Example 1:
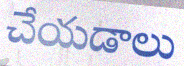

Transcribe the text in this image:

చేయడాలు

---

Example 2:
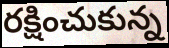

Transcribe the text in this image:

రక్షించుకున్న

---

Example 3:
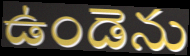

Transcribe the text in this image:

ఉండెను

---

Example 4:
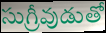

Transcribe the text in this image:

సుగ్రీవుడుతో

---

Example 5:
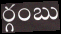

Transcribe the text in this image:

ర్గంబు